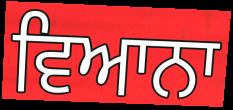
ਵਿਆਨਾ